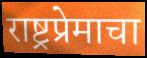
राष्ट्रप्रेमाचा